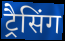
ट्रैसिंग